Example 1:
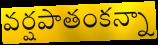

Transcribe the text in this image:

వర్షపాతంకన్నా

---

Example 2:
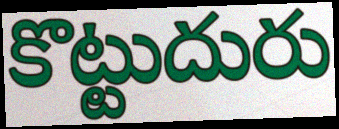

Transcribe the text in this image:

కొట్టుదురు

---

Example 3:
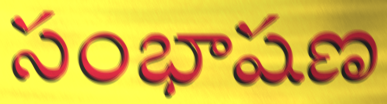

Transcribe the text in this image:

సంభాషణ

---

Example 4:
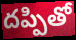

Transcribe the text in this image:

దప్పితో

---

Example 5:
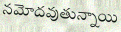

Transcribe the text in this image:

నమోదవుతున్నాయి